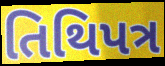
તિથિપત્ર